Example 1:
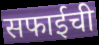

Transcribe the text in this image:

सफाईची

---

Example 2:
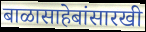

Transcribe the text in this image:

बाळासाहेबांसारखी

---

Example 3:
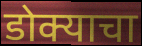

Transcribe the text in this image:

डोक्याचा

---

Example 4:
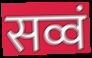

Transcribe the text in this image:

सव्वं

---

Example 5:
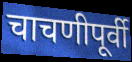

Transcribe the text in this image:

चाचणीपूर्वी